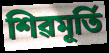
শিৱমূৰ্তি